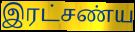
இரட்சண்ய